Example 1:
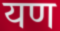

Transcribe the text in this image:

यण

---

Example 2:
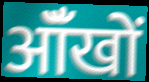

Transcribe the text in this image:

ऑँखों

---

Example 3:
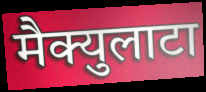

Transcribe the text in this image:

मैक्युलाटा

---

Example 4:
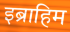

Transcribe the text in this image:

इब्राहिम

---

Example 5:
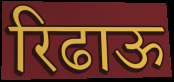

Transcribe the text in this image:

रिढाऊ